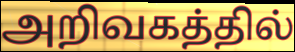
அறிவகத்தில்